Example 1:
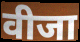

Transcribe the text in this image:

वीजा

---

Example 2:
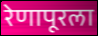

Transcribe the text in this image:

रेणापूरला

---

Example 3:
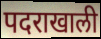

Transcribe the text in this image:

पदराखाली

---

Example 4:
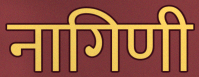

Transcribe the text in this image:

नागिणी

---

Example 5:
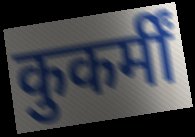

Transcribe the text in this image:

कुकर्मीं